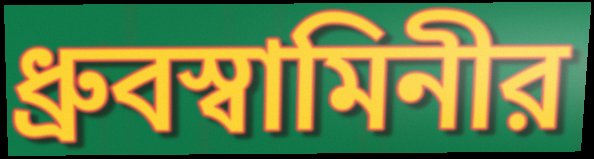
ধ্রুবস্বামিনীর